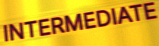
INTERMEDIATE